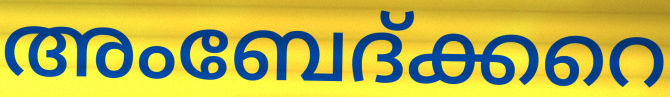
അംബേദ്ക്കറെ